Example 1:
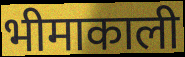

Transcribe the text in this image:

भीमाकाली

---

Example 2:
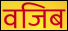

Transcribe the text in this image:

वजिब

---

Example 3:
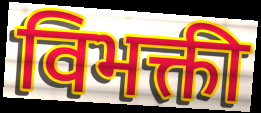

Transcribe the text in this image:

विभक्ती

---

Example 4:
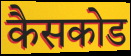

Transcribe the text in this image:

कैसकोड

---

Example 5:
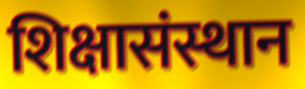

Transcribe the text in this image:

शिक्षासंस्थान